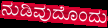
ನುಡಿವುದೊಂದು